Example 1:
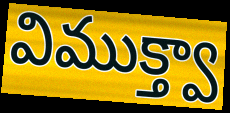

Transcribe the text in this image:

విముక్త్వా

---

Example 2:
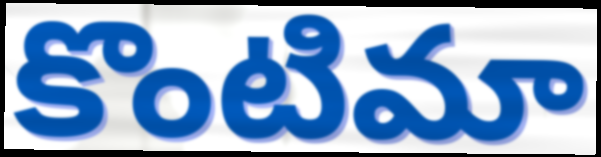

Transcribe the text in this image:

కొంటిమా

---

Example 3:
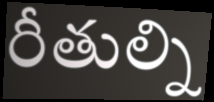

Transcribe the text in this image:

రీతుల్ని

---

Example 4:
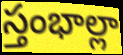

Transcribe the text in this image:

స్తంభాల్లా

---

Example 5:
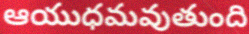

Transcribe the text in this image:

ఆయుధమవుతుంది